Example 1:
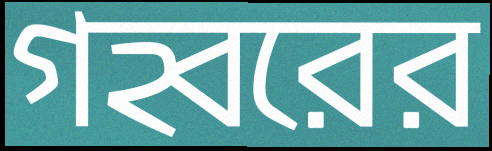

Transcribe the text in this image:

গহ্বরের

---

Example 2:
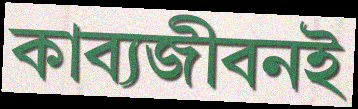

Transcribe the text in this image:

কাব্যজীবনই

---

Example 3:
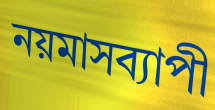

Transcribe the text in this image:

নয়মাসব্যাপী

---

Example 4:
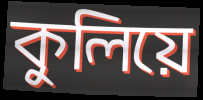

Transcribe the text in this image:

কুলিয়ে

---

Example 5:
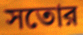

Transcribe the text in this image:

সতোর